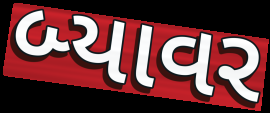
બ્યાવર